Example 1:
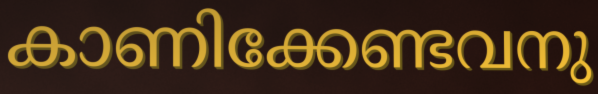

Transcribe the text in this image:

കാണിക്കേണ്ടവനു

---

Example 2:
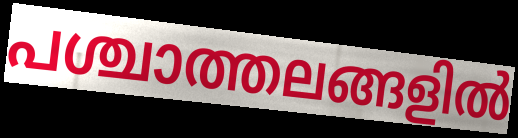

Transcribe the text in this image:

പശ്ചാത്തലങ്ങളിൽ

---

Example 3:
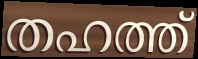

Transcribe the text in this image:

തഹത്ത്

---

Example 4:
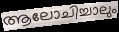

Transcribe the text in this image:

ആലോചിച്ചാലും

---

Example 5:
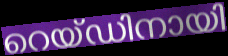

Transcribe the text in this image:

റെയ്ഡിനായി